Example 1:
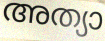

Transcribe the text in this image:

അത്യാ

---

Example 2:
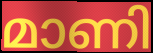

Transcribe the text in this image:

മാണി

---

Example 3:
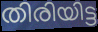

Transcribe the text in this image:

തിരിയിട്ട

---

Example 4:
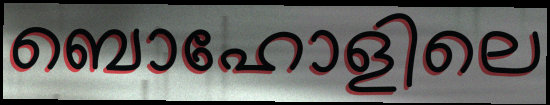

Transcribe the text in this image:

ബൊഹോളിലെ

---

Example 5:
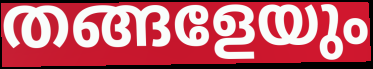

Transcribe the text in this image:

തങ്ങളേയും